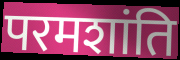
परमशांति